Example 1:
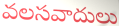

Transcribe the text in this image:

వలసవాదులు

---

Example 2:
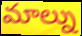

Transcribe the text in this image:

మాల్ను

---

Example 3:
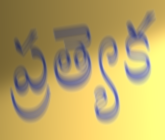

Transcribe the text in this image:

ప్రత్యెక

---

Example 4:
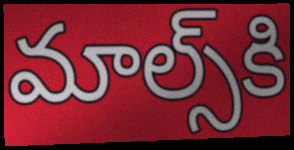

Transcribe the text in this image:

మాల్స్‌కి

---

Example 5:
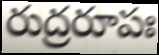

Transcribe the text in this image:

రుద్రరూపః